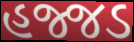
હજ્જડ